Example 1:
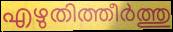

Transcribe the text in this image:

എഴുതിത്തീർത്തു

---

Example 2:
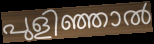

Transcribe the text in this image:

പുളിഞ്ഞാൽ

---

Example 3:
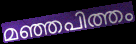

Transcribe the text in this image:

മഞ്ഞപിത്തം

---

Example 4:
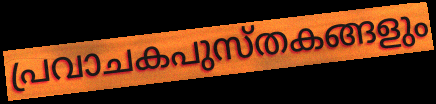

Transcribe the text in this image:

പ്രവാചകപുസ്തകങ്ങളും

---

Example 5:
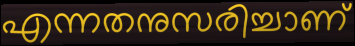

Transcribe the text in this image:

എന്നതനുസരിച്ചാണ്